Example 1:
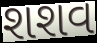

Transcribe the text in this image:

શશવ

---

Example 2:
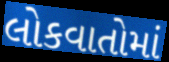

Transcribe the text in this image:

લોકવાતોમાં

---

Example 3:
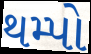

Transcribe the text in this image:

થમ્પો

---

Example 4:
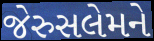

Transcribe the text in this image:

જેરુસલેમને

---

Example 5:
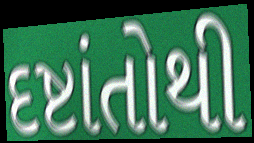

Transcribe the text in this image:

દષ્ટાંતોથી